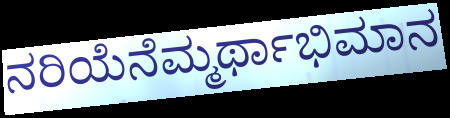
ನರಿಯೆನೆಮ್ಮರ್ಥಾಭಿಮಾನ